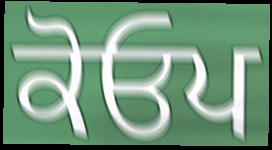
ਕੋਓਪ